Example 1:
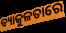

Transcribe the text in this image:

ବ୍ୟାକୁଳତାରେ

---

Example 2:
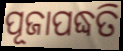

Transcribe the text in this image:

ପୂଜାପଦ୍ଧତି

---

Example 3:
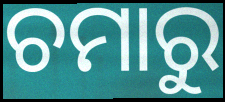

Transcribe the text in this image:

ଚମାରୁ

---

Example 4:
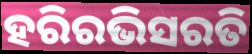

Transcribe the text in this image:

ହରିରଭିସରତି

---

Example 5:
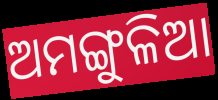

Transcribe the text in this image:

ଅମଙ୍ଗୁଳିଆ